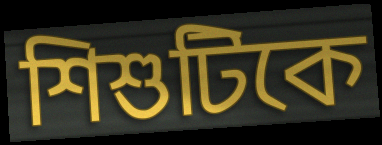
শিশুটিকে